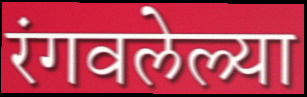
रंगवलेल्या